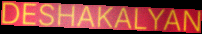
DESHAKALYAN